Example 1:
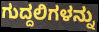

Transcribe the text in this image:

ಗುದ್ದಲಿಗಳನ್ನು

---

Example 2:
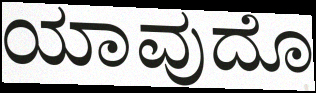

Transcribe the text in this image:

ಯಾವುದೊ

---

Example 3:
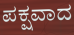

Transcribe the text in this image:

ಪಕ್ಷವಾದ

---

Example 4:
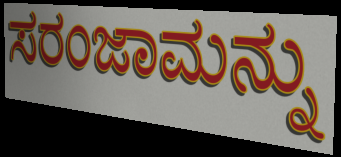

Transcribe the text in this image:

ಸರಂಜಾಮನ್ನು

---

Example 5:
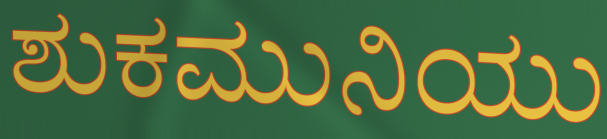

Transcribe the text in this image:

ಶುಕಮುನಿಯು